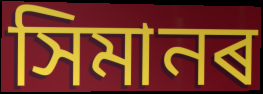
সিমানৰ